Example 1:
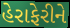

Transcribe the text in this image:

હેરાફેરીને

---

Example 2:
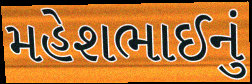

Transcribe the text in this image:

મહેશભાઈનું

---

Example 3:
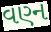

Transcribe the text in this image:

વણ્ન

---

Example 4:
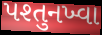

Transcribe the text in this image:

પશ્તુનખ્વા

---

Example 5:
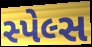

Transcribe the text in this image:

સ્પેલ્સ